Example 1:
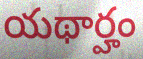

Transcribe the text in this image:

యథార్హం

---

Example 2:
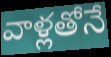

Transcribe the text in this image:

వాళ్లతోనే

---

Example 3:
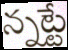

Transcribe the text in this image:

న్నట్టే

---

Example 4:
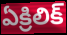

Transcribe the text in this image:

ఏక్రిలిక్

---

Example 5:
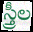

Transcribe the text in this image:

స్త్రీల